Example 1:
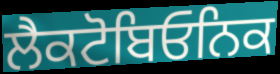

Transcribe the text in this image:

ਲੈਕਟੋਬਿਓਨਿਕ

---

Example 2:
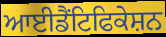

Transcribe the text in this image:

ਆਈਡੈਂਟਿਫਿਕੇਸ਼ਨ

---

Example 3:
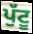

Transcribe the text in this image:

ਪੁੱਟੂ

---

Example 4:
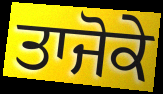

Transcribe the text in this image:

ਤਾਜੋਕੇ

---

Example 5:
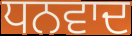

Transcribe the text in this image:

ਧਨਵਾਦ